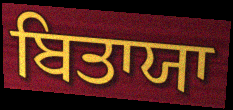
ਬਿਤਾਯਾ